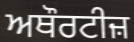
ਅਥੌਰਟੀਜ਼